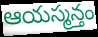
ఆయస్మన్తం